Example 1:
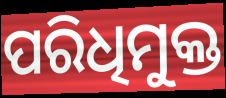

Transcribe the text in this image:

ପରିଧିମୁକ୍ତ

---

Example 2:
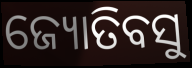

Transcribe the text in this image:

ଜ୍ୟୋତିବସୁ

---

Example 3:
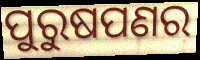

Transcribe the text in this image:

ପୁରୁଷପଣର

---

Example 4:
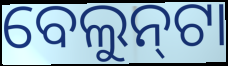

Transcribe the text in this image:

ବେଲୁନ୍‌ଟା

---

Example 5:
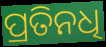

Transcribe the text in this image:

ପ୍ରତିନଧି